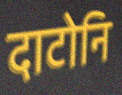
दाटोनि